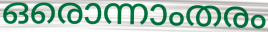
ഒരൊന്നാംതരം